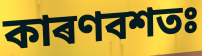
কাৰণবশতঃ